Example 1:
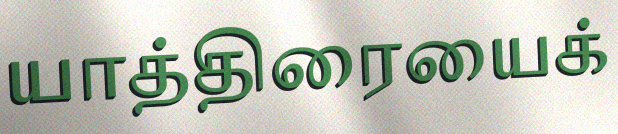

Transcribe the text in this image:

யாத்திரையைக்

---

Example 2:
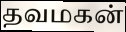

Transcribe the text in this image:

தவமகன்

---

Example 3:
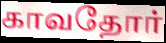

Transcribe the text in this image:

காவதோர்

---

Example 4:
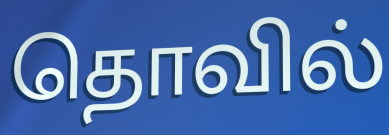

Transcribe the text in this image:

தொவில்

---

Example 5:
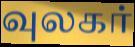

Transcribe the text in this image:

வுலகர்